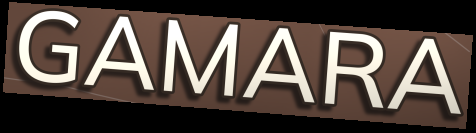
GAMARA